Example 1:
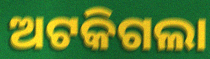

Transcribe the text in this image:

ଅଟକିଗଲା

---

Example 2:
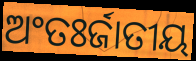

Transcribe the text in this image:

ଅଂତଃର୍ଜାତୀୟ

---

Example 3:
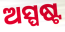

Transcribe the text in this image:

ଅସ୍ପଷ୍ଟ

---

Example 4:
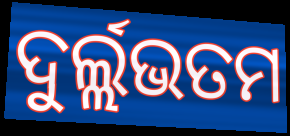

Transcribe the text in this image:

ଦୁର୍ଲ୍ଲଭତମ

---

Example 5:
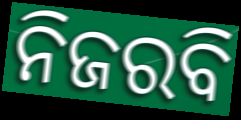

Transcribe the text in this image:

ନିଜରବି